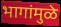
भागांमुळे